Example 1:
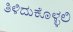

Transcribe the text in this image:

ತಿಳಿದುಕೊಳ್ಳಲಿ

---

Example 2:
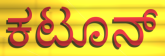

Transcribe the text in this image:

ಕಟೂನ್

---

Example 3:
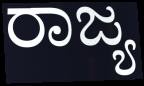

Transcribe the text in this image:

ರಾಜ್ಯ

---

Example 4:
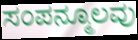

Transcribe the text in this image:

ಸಂಪನ್ಮೂಲವು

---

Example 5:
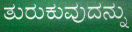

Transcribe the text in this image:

ತುರುಕುವುದನ್ನು